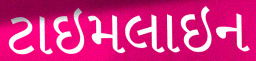
ટાઇમલાઇન